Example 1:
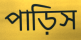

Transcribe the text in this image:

পাড়িস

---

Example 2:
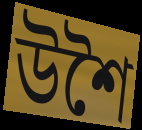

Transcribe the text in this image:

উশৈ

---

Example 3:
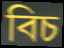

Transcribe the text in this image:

বিচ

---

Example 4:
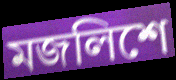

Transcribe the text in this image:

মজলিশে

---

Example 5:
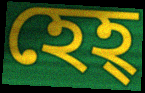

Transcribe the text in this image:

হেহ্